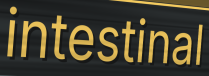
intestinal